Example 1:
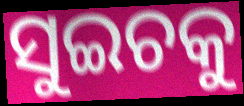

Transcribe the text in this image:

ସୁଇଚକୁ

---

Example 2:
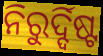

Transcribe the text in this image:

ନିରୁର୍ଦ୍ଦିଷ୍ଟ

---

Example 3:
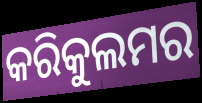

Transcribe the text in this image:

କରିକୁଲମର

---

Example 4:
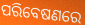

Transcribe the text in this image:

ପରିବେଷଣରେ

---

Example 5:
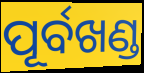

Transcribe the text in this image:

ପୂର୍ବଖଣ୍ଡ